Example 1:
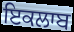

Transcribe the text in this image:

ਇਕਲਾਬ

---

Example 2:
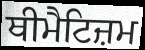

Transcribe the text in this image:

ਥੀਮੈਟਿਜ਼ਮ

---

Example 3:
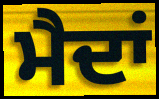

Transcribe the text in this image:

ਮੈਦਾਂ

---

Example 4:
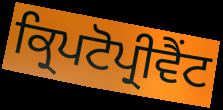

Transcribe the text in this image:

ਕ੍ਰਿਪਟੋਪ੍ਰੀਵੈਂਟ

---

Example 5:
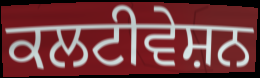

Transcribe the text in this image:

ਕਲਟੀਵੇਸ਼ਨ